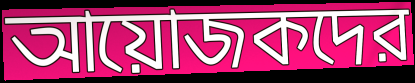
আয়োজকদের